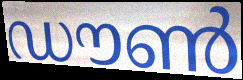
ഡൗൺ